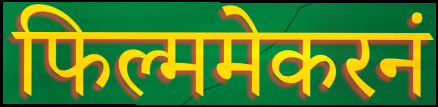
फिल्ममेकरनं